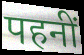
पहनीं